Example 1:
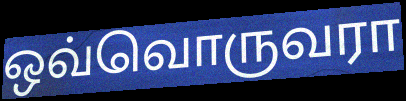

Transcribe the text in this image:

ஒவ்வொருவரா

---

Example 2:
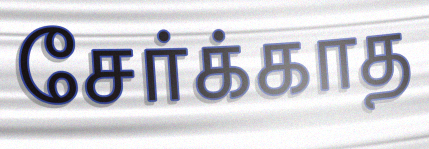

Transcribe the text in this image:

சேர்க்காத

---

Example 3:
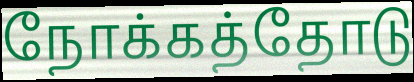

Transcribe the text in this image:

நோக்கத்தோடு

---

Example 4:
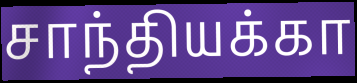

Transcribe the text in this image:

சாந்தியக்கா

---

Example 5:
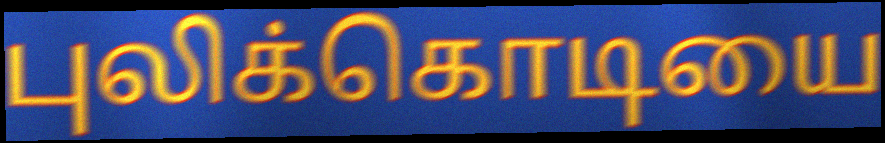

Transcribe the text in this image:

புலிக்கொடியை